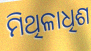
ମିଥିଳାଧିଶ